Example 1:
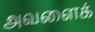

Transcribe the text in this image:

அவளைக்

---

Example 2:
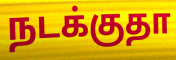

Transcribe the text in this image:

நடக்குதா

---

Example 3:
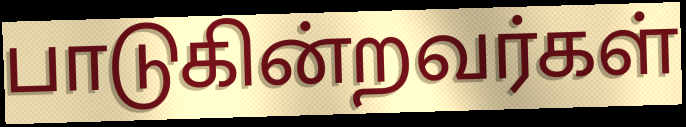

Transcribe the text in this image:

பாடுகின்றவர்கள்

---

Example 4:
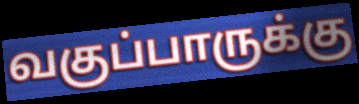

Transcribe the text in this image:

வகுப்பாருக்கு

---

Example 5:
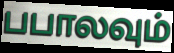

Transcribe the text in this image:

பபாலவும்